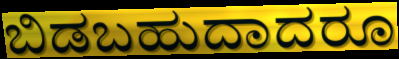
ಬಿಡಬಹುದಾದರೂ